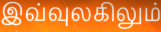
இவ்வுலகிலும்